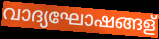
വാദ്യഘോഷങ്ങള്